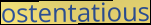
ostentatious